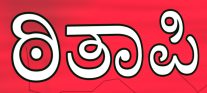
ಠಿತಾಪಿ